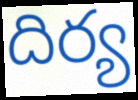
దిర్య